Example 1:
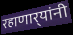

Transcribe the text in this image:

रहाणार्‍यांनी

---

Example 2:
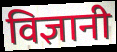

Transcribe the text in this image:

विज्ञानी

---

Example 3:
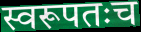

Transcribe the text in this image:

स्वरूपतःच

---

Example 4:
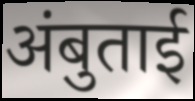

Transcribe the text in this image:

अंबुताई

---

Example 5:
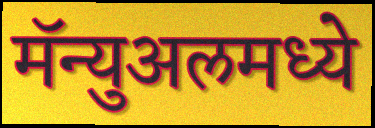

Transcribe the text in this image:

मॅन्युअलमध्ये